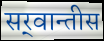
सर्वान्तीस